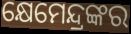
କ୍ଷେମେନ୍ଦ୍ରଙ୍କର